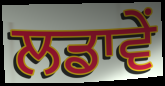
ਲਡਾਵੇਂ